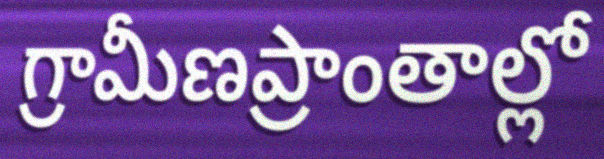
గ్రామీణప్రాంతాల్లో